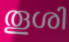
തൂശി